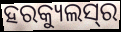
ହରକ୍ୟୁଲସ୍‍ର